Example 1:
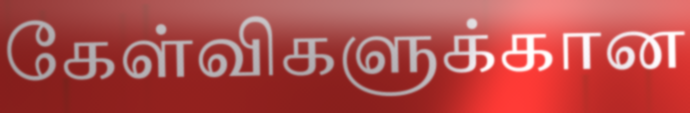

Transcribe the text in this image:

கேள்விகளுக்கான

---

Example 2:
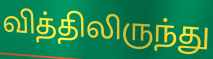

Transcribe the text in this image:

வித்திலிருந்து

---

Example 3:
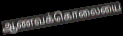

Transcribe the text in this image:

ஆணவக்கொலையை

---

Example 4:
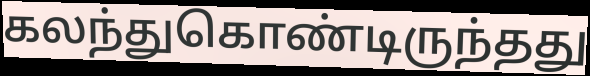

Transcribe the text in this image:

கலந்துகொண்டிருந்தது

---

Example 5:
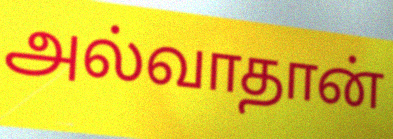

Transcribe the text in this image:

அல்வாதான்